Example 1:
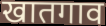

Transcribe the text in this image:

खातगाव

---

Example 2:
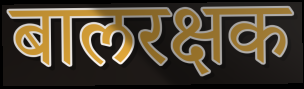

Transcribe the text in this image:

बालरक्षक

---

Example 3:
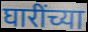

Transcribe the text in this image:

घारींच्या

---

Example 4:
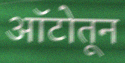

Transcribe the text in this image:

ऑटोतून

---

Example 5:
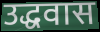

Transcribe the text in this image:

उद्धवास